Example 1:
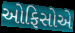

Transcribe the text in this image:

ઓફિસોએ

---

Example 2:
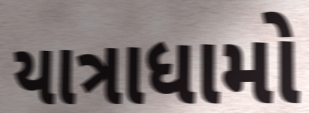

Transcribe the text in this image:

યાત્રાધામો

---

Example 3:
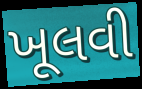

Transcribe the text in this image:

ખૂલવી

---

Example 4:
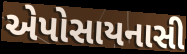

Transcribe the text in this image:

એપોસાયનાસી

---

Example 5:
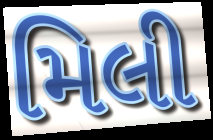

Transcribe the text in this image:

મિલી